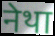
नेथा